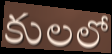
కులలో